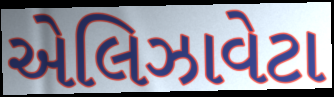
એલિઝાવેટા